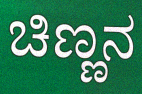
ಚಿಣ್ಣನ